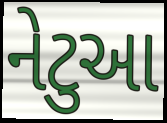
નેટુઆ